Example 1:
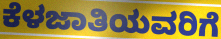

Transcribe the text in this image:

ಕೆಳಜಾತಿಯವರಿಗೆ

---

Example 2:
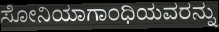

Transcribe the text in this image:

ಸೋನಿಯಾಗಾಂಧಿಯವರನ್ನು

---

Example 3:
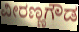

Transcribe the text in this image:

ವೀರಣ್ಣಗೌಡ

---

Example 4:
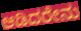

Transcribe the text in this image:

ಆಡಿದರೇನು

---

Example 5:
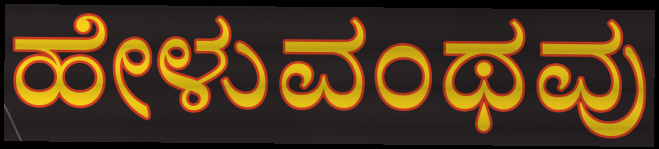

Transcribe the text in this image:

ಹೇಳುವಂಥವು